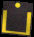
ப்